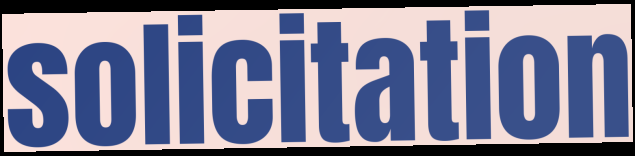
solicitation